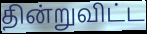
தின்றுவிட்ட